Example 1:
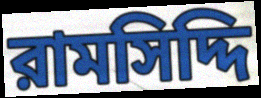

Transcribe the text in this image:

রামসিদ্দি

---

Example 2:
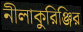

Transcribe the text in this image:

নীলাকুরিঞ্জির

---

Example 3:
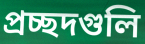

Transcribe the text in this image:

প্রচ্ছদগুলি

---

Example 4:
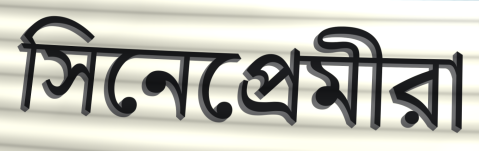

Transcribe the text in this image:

সিনেপ্রেমীরা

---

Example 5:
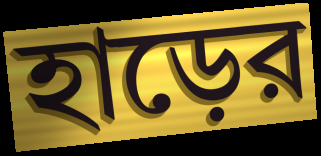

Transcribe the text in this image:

হাড়ের